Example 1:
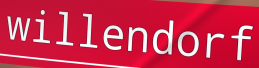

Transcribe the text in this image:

willendorf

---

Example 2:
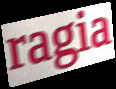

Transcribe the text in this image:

ragia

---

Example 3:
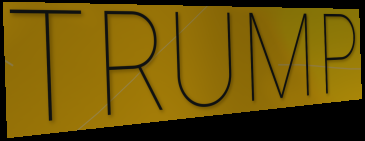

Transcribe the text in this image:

TRUMP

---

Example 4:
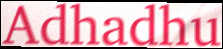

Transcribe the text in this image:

Adhadhu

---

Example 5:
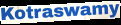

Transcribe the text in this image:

Kotraswamy